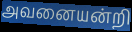
அவனையன்றி